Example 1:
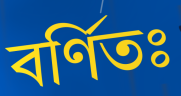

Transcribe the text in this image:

বর্ণিতঃ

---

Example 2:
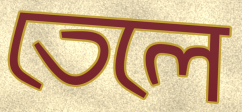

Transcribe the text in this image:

তেলে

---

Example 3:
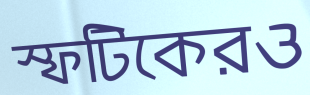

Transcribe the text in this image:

স্ফটিকেরও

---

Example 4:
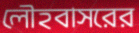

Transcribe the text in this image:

লৌহবাসরের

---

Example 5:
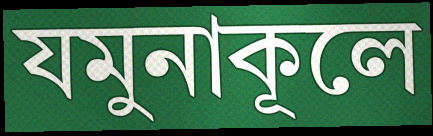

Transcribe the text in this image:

যমুনাকূলে